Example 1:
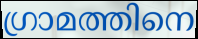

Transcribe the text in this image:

ഗ്രാമത്തിനെ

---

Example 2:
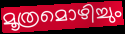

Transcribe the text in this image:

മൂത്രമൊഴിച്ചും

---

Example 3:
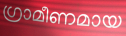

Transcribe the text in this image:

ഗ്രാമീണമായ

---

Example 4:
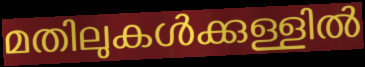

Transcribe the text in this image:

മതിലുകൾക്കുള്ളിൽ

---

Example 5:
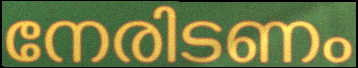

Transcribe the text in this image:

നേരിടണം